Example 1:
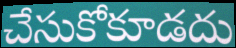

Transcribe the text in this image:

చేసుకోకూడదు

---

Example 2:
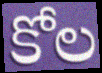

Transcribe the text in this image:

కోల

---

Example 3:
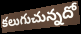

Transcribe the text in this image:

కలుగుచున్నదో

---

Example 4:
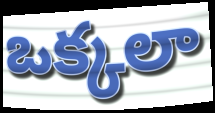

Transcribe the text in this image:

ఒక్కలా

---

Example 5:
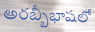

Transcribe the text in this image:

అరబ్బీభాషలో